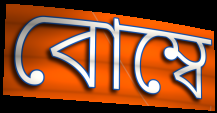
বোম্বে